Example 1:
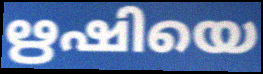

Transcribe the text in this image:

ഋഷിയെ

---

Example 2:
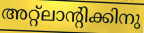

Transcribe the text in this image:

അറ്റ്ലാന്റിക്കിനു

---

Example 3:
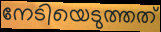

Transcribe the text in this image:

നേടിയെടുത്തത്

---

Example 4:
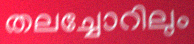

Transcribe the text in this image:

തലച്ചോറിലും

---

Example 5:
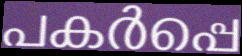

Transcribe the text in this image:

പകർപ്പെ